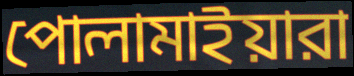
পোলামাইয়ারা